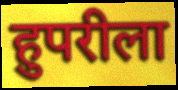
हुपरीला